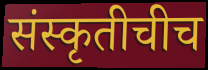
संस्कृतीचीच